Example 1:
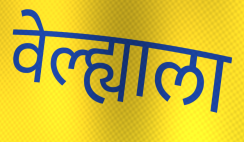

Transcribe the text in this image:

वेल्ह्याला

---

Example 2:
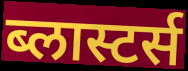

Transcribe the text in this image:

ब्लास्टर्स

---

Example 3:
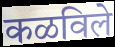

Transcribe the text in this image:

कळविले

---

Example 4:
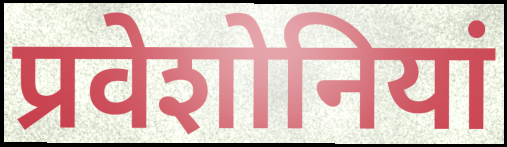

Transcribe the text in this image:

प्रवेशोनियां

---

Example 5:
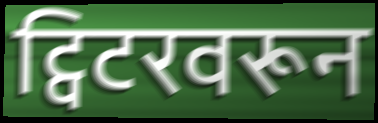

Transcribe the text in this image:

ट्विटरवरून